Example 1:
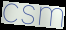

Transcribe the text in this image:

csm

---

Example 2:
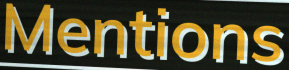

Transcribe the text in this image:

Mentions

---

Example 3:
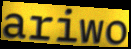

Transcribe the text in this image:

ariwo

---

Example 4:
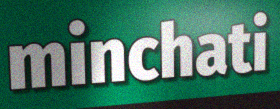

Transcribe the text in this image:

minchati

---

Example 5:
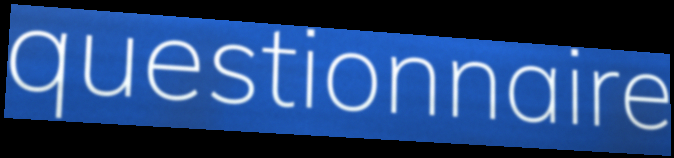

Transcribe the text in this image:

questionnaire